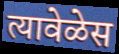
त्यावेळेस